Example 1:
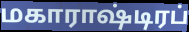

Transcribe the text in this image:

மகாராஷ்டிரப்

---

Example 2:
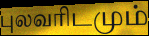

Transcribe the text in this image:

புலவரிடமும்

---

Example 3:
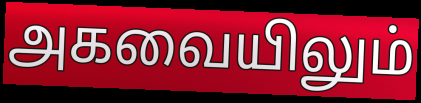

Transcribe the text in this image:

அகவையிலும்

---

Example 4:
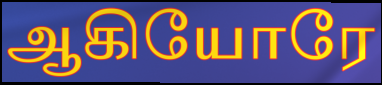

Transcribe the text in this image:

ஆகியோரே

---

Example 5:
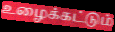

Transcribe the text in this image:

உழைக்கட்டும்